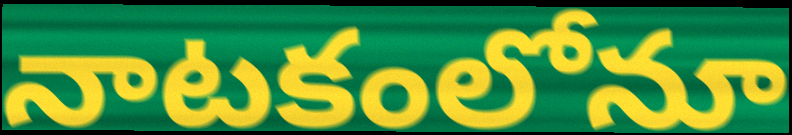
నాటకంలోనూ